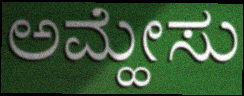
ಅಮ್ಹೇಸು